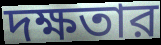
দক্ষতার